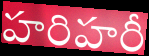
హరిహరీ